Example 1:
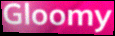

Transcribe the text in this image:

Gloomy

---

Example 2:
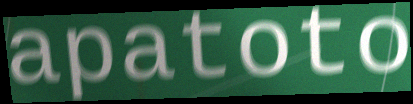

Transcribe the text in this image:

apatoto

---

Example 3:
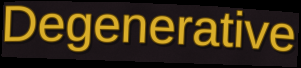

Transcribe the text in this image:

Degenerative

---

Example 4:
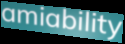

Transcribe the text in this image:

amiability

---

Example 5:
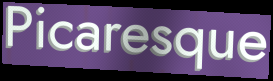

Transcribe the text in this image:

Picaresque